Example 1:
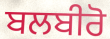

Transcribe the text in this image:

ਬਲਬੀਰੋ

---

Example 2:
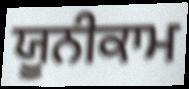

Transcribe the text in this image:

ਯੂਨੀਕਾਮ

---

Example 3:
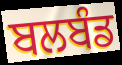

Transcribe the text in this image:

ਬਲਬੰਡ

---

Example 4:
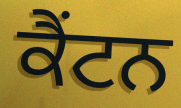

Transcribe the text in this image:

ਕੈਂਟਨ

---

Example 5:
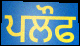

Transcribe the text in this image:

ਪਲੌਫ